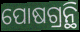
ପୋଷଗ୍ରନ୍ଥି